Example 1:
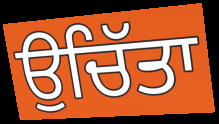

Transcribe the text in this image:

ਉਚਿੱਤਾ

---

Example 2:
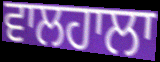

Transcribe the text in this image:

ਵਾਲਹਾਲਾ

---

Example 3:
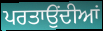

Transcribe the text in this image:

ਪਰਤਾਉਂਦੀਆਂ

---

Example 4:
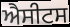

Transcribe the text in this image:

ਐਸੀਟਸ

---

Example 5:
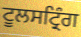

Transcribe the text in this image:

ਟੂਲਸਟ੍ਰਿੰਗ